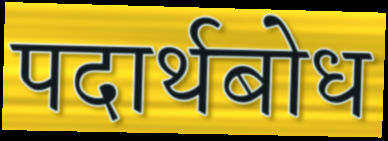
पदार्थबोध